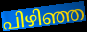
പിഴിഞ്ഞ